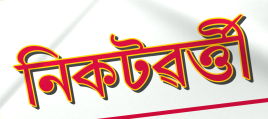
নিকটৱৰ্ত্তী